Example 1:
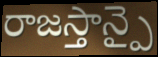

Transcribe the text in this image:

రాజస్తాన్పై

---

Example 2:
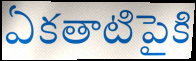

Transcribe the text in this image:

ఏకతాటిపైకి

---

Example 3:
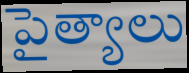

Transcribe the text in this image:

పైత్యాలు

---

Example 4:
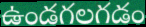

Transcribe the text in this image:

ఉండగలగడం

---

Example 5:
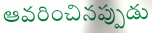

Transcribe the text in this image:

ఆవరించినప్పుడు